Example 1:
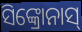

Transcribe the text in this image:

ସିଙ୍କ୍ରୋନାସ୍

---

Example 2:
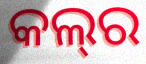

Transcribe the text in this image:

କଲ୍‌ର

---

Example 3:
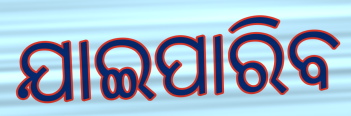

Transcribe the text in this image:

ଯାଇପାରିବ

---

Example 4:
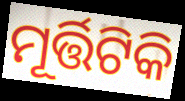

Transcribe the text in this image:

ମୂର୍ତ୍ତିଟିକି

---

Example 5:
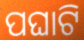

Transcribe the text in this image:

ପଘାଟି